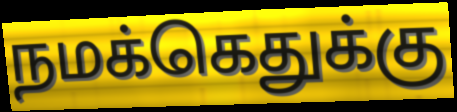
நமக்கெதுக்கு